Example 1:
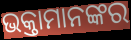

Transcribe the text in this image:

ଭକ୍ତାମାନଙ୍କର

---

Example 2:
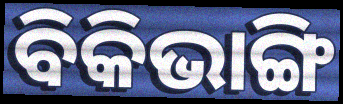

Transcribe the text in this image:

ବିକିଭାଙ୍ଗି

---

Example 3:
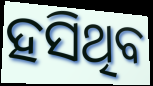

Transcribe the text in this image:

ହସିଥିବ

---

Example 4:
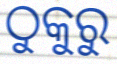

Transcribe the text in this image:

ଠୁକୁରୁ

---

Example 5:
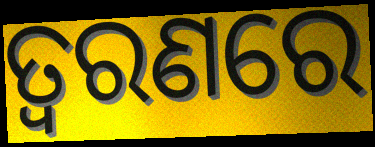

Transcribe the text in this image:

ତ୍ଵରଣରେ